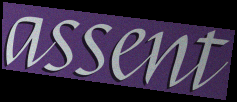
assent